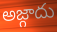
అజ్గాదు